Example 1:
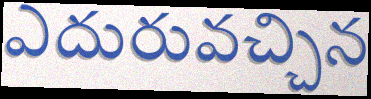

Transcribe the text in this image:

ఎదురువచ్చిన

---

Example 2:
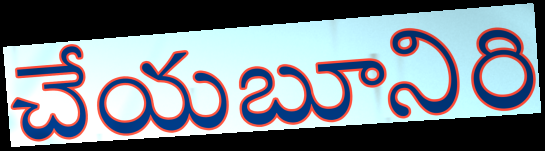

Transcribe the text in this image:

చేయబూనిరి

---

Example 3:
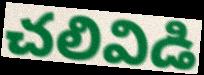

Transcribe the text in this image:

చలివిడి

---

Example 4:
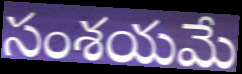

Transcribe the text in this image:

సంశయమే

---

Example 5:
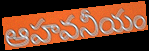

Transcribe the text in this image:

ఆహవనీయం